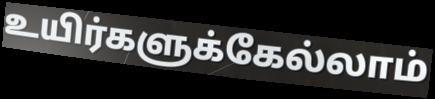
உயிர்களுக்கேல்லாம்